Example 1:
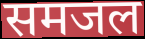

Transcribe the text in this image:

समजल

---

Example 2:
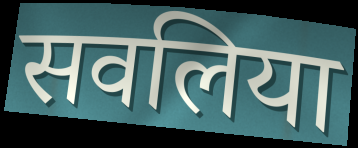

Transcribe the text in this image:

सवलिया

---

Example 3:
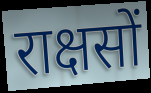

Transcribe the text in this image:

राक्षसों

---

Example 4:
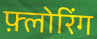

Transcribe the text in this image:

फ़्लोरिंग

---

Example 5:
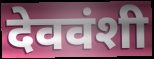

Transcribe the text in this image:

देववंशी